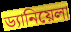
ড্যানিয়েলা